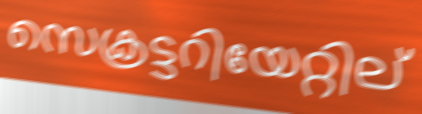
സെക്രട്ടറിയേറ്റില്